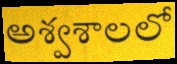
అశ్వశాలలో